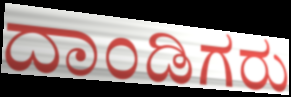
ದಾಂಡಿಗರು